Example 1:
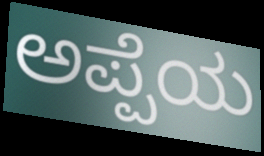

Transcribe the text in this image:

ಅಪ್ಪೆಯ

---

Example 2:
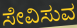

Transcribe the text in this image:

ಸೇವಿಸುವ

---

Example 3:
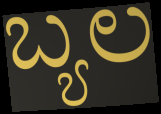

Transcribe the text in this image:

ಬ್ಯಲ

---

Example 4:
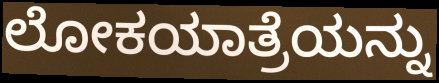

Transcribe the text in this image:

ಲೋಕಯಾತ್ರೆಯನ್ನು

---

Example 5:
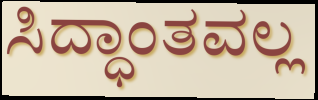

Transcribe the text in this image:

ಸಿದ್ಧಾಂತವಲ್ಲ